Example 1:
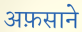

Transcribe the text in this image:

अफ़साने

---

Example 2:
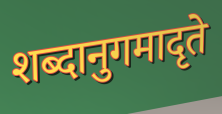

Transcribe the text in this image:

शब्दानुगमादृते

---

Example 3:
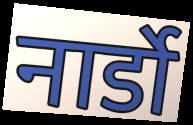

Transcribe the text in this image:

नार्डो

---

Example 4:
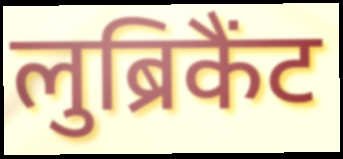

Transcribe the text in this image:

लुब्रिकैंट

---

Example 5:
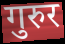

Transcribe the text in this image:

गुरुर